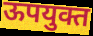
ऊपयुक्त